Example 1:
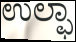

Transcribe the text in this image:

ಉಲ್ಫಾ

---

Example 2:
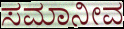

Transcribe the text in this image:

ಸಮಾನೀವ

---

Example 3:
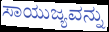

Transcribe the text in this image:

ಸಾಯುಜ್ಯವನ್ನು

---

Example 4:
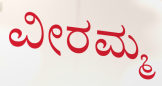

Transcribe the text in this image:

ವೀರಮ್ಮ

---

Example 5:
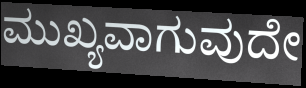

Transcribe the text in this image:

ಮುಖ್ಯವಾಗುವುದೇ